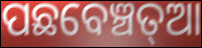
ପଛବେଞ୍ଚତ୍ଆ